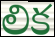
లిక